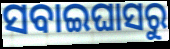
ସବାଇଘାସରୁ